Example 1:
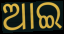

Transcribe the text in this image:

ଆଇ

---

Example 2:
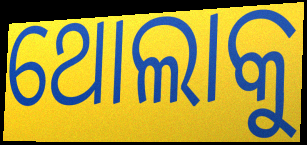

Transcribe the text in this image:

ଥୋଲାକୁ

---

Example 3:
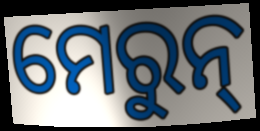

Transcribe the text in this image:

ମେରୁନ୍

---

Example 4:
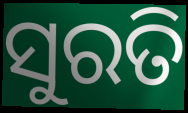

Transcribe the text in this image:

ସୁରତି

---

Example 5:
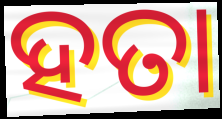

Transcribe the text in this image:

ହତା